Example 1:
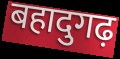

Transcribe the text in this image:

बहादुगढ़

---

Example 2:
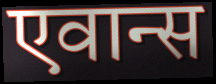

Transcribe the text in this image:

एवान्स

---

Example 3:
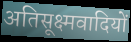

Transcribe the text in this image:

अतिसूक्ष्मवादियों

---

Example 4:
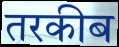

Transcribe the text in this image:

तरकीब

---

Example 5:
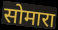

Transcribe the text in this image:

सोमारा